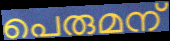
പെരുമന്